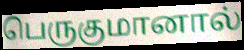
பெருகுமானால்